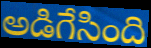
అడిగేసింది